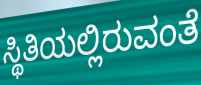
ಸ್ಥಿತಿಯಲ್ಲಿರುವಂತೆ